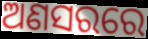
ଅଣସରରେ